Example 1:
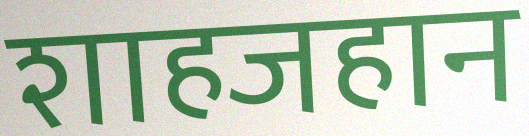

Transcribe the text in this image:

शाहजहान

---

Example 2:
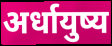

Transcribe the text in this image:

अर्धायुष्य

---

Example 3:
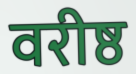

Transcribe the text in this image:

वरीष्ठ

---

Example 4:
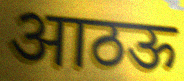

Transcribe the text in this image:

आठऊ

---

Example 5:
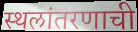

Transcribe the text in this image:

स्थलांतरणाची